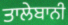
ਤਾਲੇਬਾਨੀ